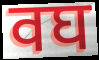
वघ